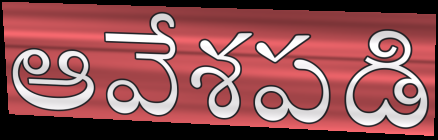
ఆవేశపడి